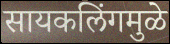
सायकलिंगमुळे